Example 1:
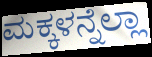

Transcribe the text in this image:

ಮಕ್ಕಳನ್ನೆಲ್ಲಾ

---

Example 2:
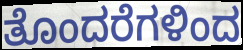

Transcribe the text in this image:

ತೊಂದರೆಗಳಿಂದ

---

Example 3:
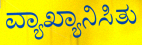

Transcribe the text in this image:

ವ್ಯಾಖ್ಯಾನಿಸಿತು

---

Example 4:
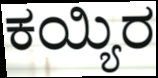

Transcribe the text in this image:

ಕಯ್ಯಿರ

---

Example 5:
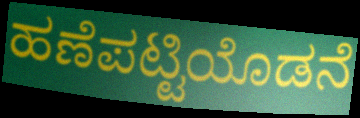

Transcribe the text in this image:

ಹಣೆಪಟ್ಟಿಯೊಡನೆ